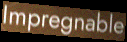
Impregnable